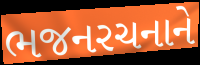
ભજનરચનાને